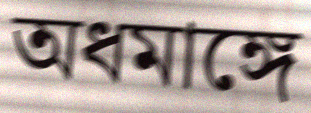
অধমাঙ্গে